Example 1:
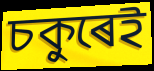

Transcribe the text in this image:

চকুৰেই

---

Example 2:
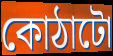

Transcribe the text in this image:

কোঠাটো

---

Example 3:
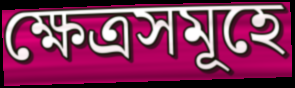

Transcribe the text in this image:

ক্ষেত্ৰসমূহে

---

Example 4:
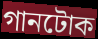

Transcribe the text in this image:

গানটোক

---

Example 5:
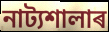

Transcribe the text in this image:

নাট্যশালাৰ